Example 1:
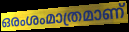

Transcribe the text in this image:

ഒരംശംമാത്രമാണ്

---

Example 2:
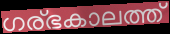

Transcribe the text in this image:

ഗര്ഭകാലത്ത്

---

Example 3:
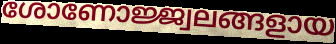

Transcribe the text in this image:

ശോണോജ്ജ്വലങ്ങളായ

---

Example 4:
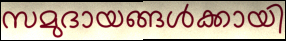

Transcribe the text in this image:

സമുദായങ്ങൾക്കായി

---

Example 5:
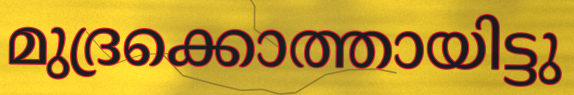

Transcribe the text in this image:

മുദ്രക്കൊത്തായിട്ടു